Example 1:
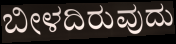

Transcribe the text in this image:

ಬೀಳದಿರುವುದು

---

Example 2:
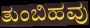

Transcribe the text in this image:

ತುಂಬಿಹವು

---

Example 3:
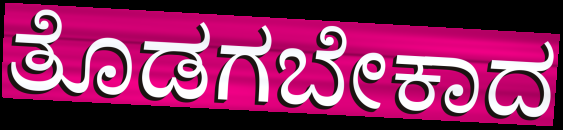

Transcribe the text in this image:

ತೊಡಗಬೇಕಾದ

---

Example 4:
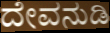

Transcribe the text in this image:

ದೇವನುಡಿ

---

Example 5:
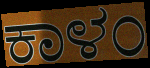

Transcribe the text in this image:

ಕಾಳಂ